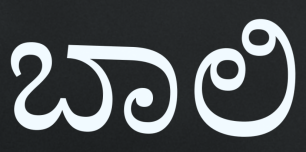
ಬಾಲಿ